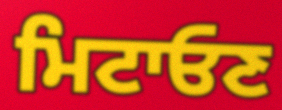
ਮਿਟਾਓਣ